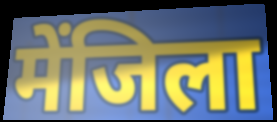
मेंजिला